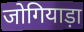
जोगियाड़ा